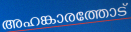
അഹങ്കാരത്തോട്